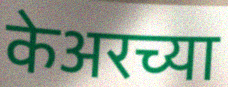
केअरच्या